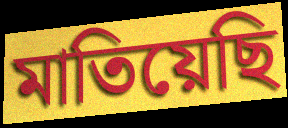
মাতিয়েছি